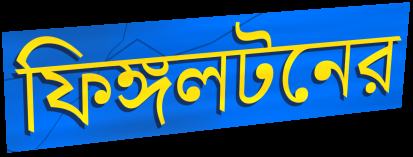
ফিঙ্গলটনের